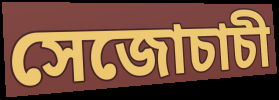
সেজোচাচী